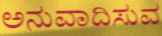
ಅನುವಾದಿಸುವ